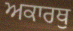
ਅਕਾਰਥੁ